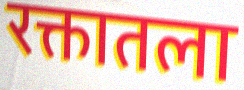
रक्तातला